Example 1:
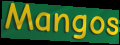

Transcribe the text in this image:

Mangos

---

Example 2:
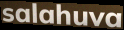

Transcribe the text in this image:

salahuva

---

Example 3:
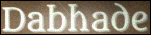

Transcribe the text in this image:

Dabhade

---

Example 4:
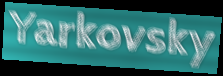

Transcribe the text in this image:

Yarkovsky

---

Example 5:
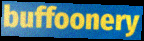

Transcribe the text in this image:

buffoonery